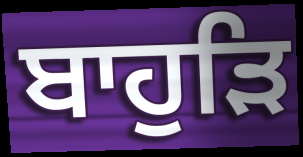
ਬਾਹੁੜਿ